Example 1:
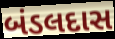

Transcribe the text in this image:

બંડલદાસ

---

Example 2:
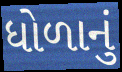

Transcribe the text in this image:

ધોળાનું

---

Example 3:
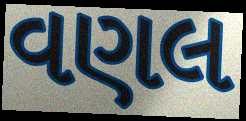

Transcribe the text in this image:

વણલ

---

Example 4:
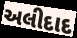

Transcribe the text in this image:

અલીદાદ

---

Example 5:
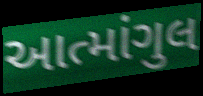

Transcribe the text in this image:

આત્માંગુલ